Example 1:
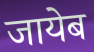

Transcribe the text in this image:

जायेब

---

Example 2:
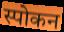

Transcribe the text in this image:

स्पोकन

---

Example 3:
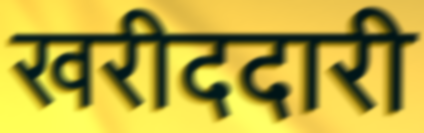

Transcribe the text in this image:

खरीददारी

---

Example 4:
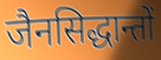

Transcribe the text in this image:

जैनसिद्धान्तों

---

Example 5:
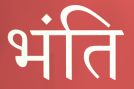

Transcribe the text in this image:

भंति